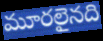
మూరలైనది